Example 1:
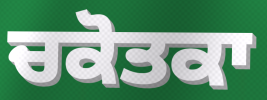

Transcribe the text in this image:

ਚਕੋਤਕਾ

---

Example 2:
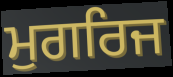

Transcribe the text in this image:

ਮੁਗਰਿਜ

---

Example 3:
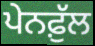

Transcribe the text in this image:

ਪੇਨਫ਼ੁੱਲ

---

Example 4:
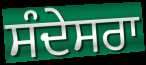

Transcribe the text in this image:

ਸੰਦੇਸਰਾ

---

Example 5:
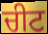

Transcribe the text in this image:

ਚੀਟ